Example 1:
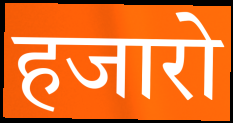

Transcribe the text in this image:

हजारो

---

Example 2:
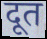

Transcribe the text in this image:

दूत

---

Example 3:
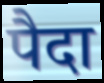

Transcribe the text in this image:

पैदा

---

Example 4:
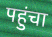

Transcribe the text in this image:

पहुंचा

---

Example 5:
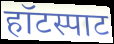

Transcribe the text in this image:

हॉटस्पाट